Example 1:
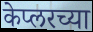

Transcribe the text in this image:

केप्लरच्या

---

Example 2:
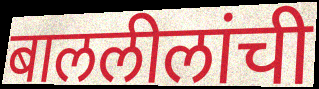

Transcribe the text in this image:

बाललीलांची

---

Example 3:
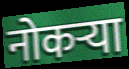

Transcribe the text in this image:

नोकऱ्या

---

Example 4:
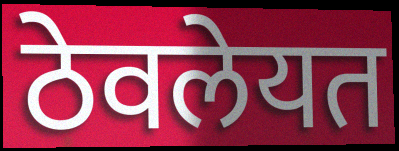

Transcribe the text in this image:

ठेवलेयत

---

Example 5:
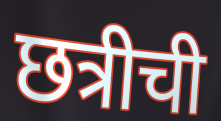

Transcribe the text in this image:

छत्रीची